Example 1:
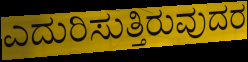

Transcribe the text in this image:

ಎದುರಿಸುತ್ತಿರುವುದರ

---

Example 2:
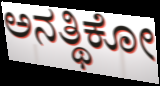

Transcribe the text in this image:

ಅನತ್ಥಿಕೋ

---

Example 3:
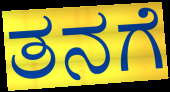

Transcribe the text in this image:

ತನಗೆ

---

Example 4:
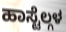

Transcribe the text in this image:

ಹಾಸ್ಟೆಲ್ಗಳ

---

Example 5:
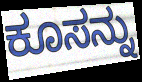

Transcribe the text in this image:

ಕೂಸನ್ನು